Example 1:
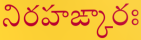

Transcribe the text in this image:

నిరహఙ్కారః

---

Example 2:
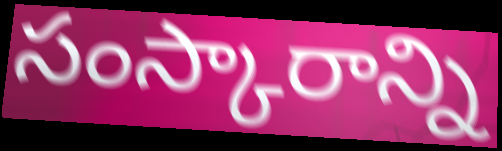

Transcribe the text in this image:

సంస్కారాన్ని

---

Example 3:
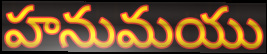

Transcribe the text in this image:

హనుమయు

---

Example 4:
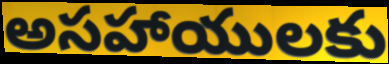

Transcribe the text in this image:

అసహాయులకు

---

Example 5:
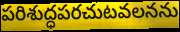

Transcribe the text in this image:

పరిశుద్ధపరచుటవలనను